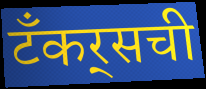
टँकर्सची